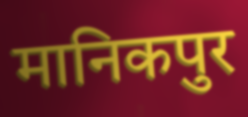
मानिकपुर